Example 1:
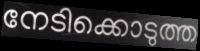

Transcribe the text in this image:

നേടിക്കൊടുത്ത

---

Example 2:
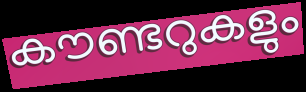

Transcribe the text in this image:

കൗണ്ടറുകളും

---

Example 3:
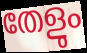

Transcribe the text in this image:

തേളും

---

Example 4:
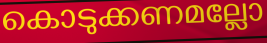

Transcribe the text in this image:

കൊടുക്കണമല്ലോ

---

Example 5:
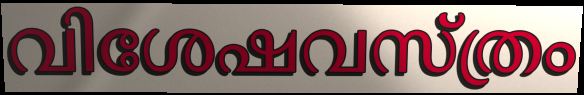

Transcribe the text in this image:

വിശേഷവസ്ത്രം